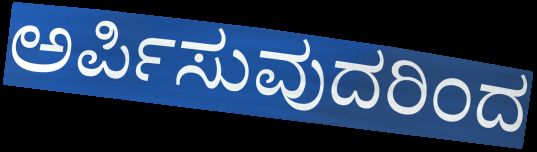
ಅರ್ಪಿಸುವುದರಿಂದ